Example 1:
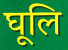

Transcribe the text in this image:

घूलि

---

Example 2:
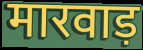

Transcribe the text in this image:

मारवाड़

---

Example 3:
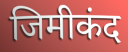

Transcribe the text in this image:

जिमीकंद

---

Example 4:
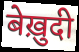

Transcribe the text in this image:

बेख़ुदी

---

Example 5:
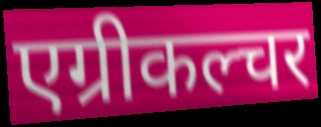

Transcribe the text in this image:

एग्रीकल्चर